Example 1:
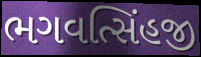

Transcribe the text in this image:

ભગવત્સિંહજી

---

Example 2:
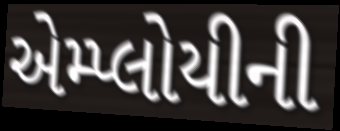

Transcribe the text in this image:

એમ્પ્લોયીની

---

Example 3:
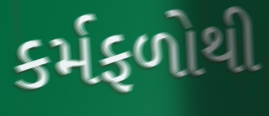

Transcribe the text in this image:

કર્મફળોથી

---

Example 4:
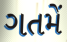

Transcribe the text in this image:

ગતમેં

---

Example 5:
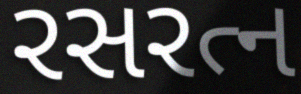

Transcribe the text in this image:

રસરત્ન